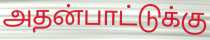
அதன்பாட்டுக்கு